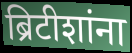
ब्रिटीशांना